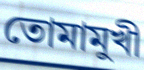
তোমামুখী